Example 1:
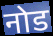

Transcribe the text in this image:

नोड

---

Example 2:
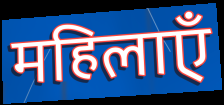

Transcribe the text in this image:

महिलाएँ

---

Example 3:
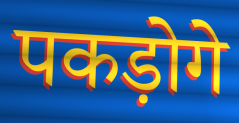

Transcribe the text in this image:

पकड़ोगे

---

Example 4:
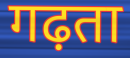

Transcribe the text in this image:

गढ़ता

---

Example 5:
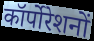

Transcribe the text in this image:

कॉर्पोरेशनों